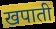
खपाती